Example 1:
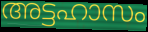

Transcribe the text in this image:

അട്ടഹാസം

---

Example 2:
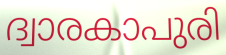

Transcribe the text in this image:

ദ്വാരകാപുരി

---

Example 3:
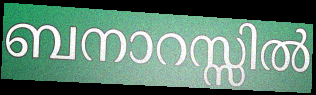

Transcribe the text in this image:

ബനാറസ്സിൽ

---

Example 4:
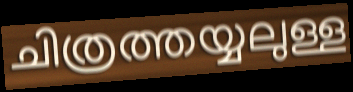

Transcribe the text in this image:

ചിത്രത്തയ്യലുള്ള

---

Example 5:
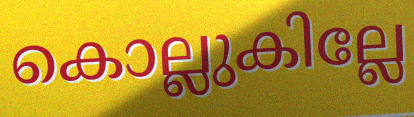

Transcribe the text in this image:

കൊല്ലുകില്ലേ